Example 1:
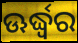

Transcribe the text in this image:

ଊର୍ଦ୍ଧ୍ଵର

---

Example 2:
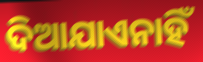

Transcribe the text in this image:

ଦିଆଯାଏନାହିଁ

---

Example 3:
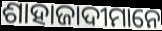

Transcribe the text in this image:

ଶାହାଜାଦୀମାନେ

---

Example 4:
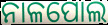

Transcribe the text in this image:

ନାଳପୋଲ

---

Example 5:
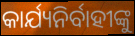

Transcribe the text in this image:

କାର୍ଯ୍ୟନିର୍ବାହୀଙ୍କୁ